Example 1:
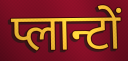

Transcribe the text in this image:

प्लान्टों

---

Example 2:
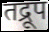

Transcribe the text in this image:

तद्रूप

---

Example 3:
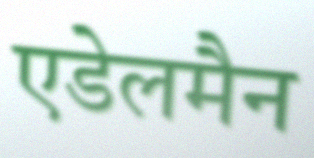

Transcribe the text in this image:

एडेलमैन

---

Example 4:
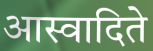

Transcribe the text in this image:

आस्वादिते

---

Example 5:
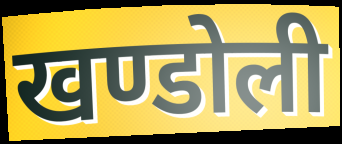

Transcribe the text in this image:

खण्डोली